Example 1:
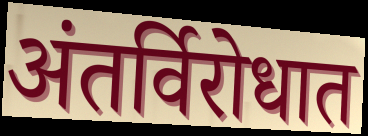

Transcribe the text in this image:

अंतर्विरोधात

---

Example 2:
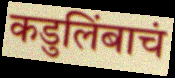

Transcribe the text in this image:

कडुलिंबाचं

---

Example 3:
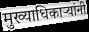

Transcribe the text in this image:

मुख्याधिकाऱ्यांनी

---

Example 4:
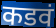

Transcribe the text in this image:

कडवं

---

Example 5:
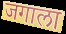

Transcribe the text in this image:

जगाला